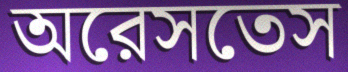
অরেসতেস